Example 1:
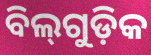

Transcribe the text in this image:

ବିଲ୍‌ଗୁଡ଼ିକ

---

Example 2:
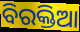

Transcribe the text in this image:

ବିରକ୍ତିଆ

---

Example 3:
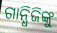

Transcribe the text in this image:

ଗାନ୍ଧିଜିଙ୍କୁ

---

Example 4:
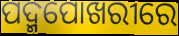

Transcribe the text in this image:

ପଦ୍ମପୋଖରୀରେ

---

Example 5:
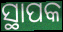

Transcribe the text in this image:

ସ୍ଥାପକ